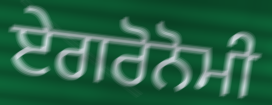
ਏਗਰੋਨੋਮੀ